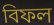
বিফল